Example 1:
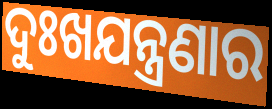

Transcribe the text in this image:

ଦୁଃଖଯନ୍ତ୍ରଣାର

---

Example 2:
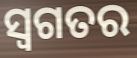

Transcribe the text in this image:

ସ୍ୱଗତର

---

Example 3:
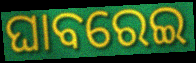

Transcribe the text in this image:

ଘାବରେଇ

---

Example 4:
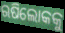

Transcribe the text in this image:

ଋଷିଲୋକକୁ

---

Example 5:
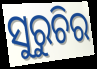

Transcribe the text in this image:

ସୁରୁଚିର